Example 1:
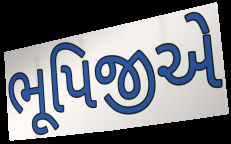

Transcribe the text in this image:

ભૂપિજીએ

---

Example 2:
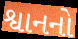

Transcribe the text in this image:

શ્વાનનો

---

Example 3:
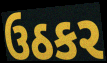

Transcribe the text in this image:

ઉઠકર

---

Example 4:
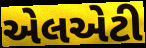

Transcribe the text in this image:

એલએટી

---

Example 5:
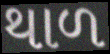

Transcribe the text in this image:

થાળ